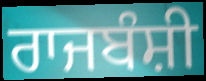
ਰਾਜਬੰਸ਼ੀ